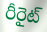
రీరైట్